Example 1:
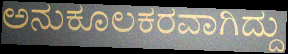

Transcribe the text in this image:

ಅನುಕೂಲಕರವಾಗಿದ್ದು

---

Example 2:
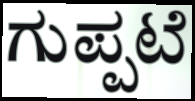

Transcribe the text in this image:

ಗುಪ್ಪಟೆ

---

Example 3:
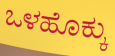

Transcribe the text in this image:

ಒಳಹೊಕ್ಕು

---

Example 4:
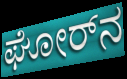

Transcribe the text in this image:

ಘೋರ್‌ನ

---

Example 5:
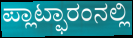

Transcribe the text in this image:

ಪ್ಲಾಟ್ಫಾರಂನಲ್ಲಿ